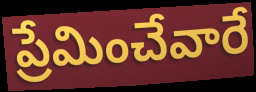
ప్రేమించేవారే